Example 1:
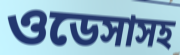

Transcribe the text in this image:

ওডেসাসহ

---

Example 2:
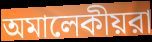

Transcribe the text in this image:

অমালেকীয়রা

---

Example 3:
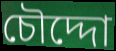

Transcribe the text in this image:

চৌদ্দো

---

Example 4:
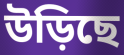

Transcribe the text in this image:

উড়িছে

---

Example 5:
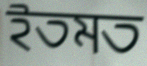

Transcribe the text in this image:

ইতমত